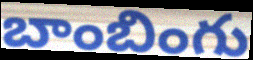
బాంబింగు